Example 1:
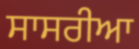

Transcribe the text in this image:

ਸਾਸਰੀਆ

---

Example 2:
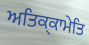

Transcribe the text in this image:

ਅਤਿਕ੍ਕਾਮੇਤਿ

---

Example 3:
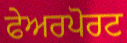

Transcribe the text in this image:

ਫੇਅਰਪੋਰਟ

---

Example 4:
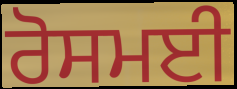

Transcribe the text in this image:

ਰੋਸਮਈ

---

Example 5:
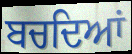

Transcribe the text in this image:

ਬਚਦਿਆਂ